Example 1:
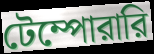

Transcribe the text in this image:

টেম্পোরারি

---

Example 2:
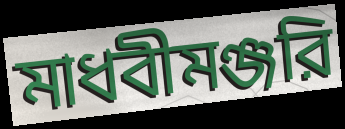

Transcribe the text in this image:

মাধবীমঞ্জরি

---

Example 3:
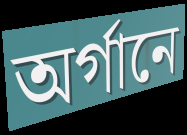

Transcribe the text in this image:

অর্গানে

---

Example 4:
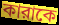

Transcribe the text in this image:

কারাকে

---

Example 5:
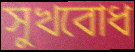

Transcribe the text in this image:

সুখবোধ